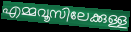
എമ്മവൂസിലേക്കുള്ള